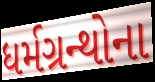
ધર્મગ્રન્થોના